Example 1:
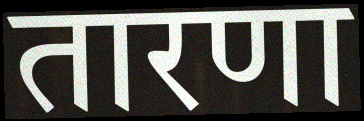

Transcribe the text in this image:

तारणा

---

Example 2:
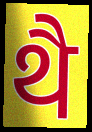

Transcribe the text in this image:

थै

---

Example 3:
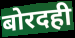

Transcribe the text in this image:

बोरदही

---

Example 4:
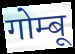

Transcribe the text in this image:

गोम्बू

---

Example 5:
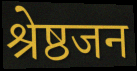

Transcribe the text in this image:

श्रेष्ठजन